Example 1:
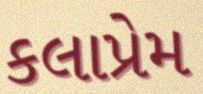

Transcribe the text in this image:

કલાપ્રેમ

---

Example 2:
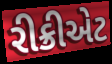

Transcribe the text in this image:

રીક્રીએટ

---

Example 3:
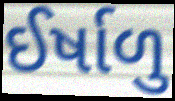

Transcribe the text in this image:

ઈર્ષાળુ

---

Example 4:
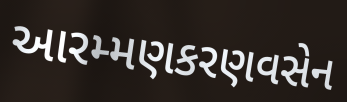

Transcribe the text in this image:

આરમ્મણકરણવસેન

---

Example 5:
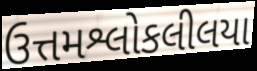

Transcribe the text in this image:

ઉત્તમશ્લોકલીલયા